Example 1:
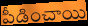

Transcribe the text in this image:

పీడించాయి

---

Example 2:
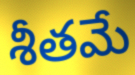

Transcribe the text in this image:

శీతమే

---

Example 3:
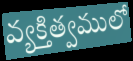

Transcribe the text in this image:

వ్యక్తిత్వములో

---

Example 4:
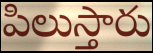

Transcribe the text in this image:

పిలుస్తారు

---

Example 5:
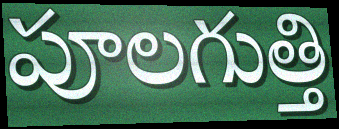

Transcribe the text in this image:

పూలగుత్తి